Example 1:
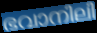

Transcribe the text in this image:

ഭവാനിലി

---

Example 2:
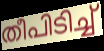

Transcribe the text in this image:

തീപിടിച്ച്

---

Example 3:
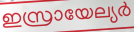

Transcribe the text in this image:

ഇസ്രായേല്യർ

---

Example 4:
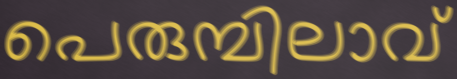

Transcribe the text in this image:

പെരുമ്പിലാവ്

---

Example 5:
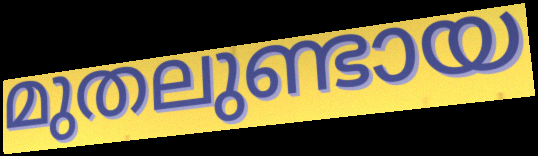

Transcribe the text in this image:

മുതലുണ്ടായ